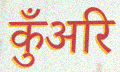
कुँअरि